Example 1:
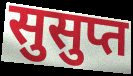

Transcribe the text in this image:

सुसुप्त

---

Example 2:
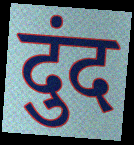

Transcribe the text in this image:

दुंद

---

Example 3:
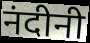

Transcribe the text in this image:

नंदीनी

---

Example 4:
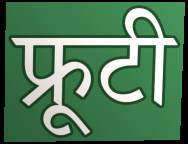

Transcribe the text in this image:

फ्रूटी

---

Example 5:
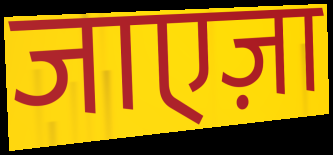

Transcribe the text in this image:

जाएज़ा